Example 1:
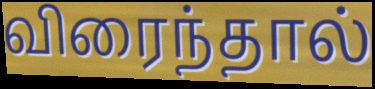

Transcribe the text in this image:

விரைந்தால்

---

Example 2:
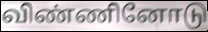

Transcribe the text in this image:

விண்ணினோடு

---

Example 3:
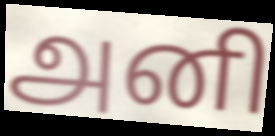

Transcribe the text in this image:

அனி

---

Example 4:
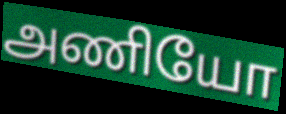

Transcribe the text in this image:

அணியோ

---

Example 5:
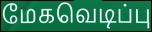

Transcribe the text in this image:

மேகவெடிப்பு